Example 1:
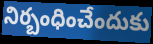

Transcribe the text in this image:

నిర్బంధించేందుకు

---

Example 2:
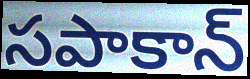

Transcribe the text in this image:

సపాకాన్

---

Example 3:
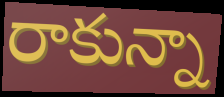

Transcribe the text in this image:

రాకున్నా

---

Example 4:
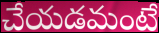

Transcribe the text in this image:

చేయడమంటే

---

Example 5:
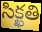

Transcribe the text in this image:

సిక్ఖతి